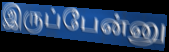
இருப்பேன்னு